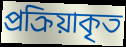
প্রক্রিয়াকৃত